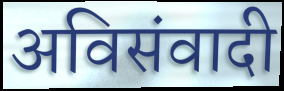
अविसंवादी